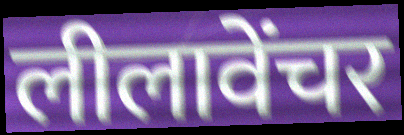
लीलावेंचर